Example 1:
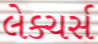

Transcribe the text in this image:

લેક્ચર્સ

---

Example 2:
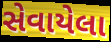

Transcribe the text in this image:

સેવાયેલા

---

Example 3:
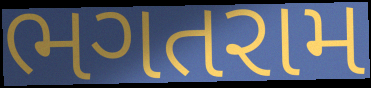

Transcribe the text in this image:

ભગતરામ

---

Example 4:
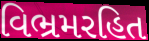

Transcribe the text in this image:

વિભ્રમરહિત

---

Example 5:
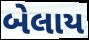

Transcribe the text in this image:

બેલાય